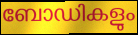
ബോഡികളും